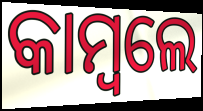
କାମ୍ବଲେ